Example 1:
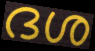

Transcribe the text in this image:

ദശ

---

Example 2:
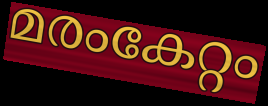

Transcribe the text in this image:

മരംകേറ്റം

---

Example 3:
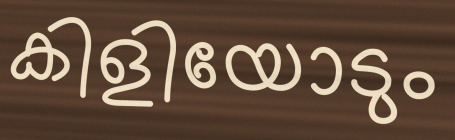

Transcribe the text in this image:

കിളിയോടും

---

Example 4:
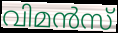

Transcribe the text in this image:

വിമൻസ്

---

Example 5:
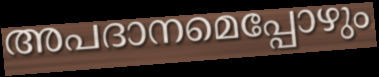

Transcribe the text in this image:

അപദാനമെപ്പോഴും